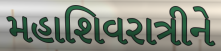
મહાશિવરાત્રીને